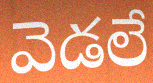
వెడలే